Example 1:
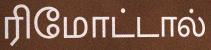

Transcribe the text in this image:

ரிமோட்டால்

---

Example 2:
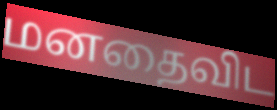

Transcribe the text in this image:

மனதைவிட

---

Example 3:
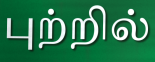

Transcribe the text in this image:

புற்றில்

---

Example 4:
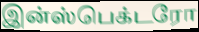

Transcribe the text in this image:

இன்ஸ்பெக்டரோ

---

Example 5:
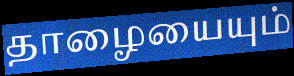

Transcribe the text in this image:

தாழையையும்